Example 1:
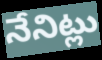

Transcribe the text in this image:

నేనిట్లు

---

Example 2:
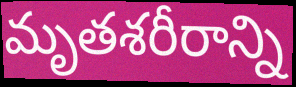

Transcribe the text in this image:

మృతశరీరాన్ని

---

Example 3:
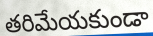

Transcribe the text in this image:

తరిమేయకుండా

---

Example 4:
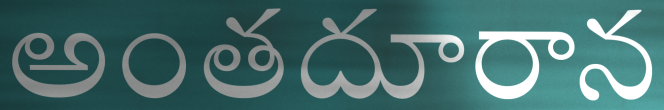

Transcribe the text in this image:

అంతదూరాన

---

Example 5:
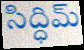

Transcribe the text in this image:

సిద్ధిమ్